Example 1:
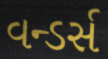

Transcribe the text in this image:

વન્ડર્સ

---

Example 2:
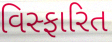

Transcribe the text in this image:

વિસ્ફારિત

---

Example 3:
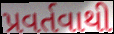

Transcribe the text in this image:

પ્રવર્તવાથી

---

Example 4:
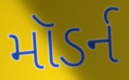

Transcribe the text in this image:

મૉડર્ન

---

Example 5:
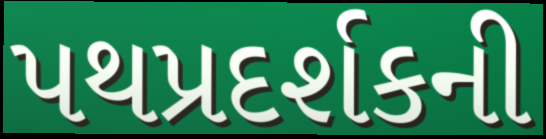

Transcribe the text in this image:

પથપ્રદર્શકની